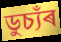
ডুচ্যঁৰ